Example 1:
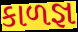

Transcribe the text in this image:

કાળજ્ઞ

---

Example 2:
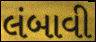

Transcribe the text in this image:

લંબાવી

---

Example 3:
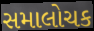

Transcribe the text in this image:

સમાલોચક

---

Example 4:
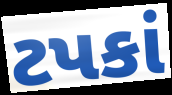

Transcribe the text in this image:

ટપકાં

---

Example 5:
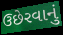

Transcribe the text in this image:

ઉછેરવાનું